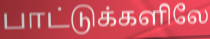
பாட்டுக்களிலே